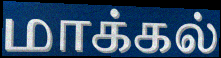
மாக்கல்